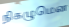
நிகழுமென